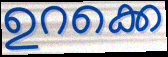
ഉറക്കെ